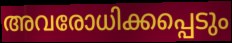
അവരോധിക്കപ്പെടും